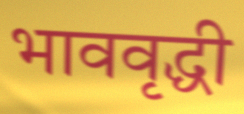
भाववृद्धी